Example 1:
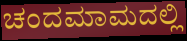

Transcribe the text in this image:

ಚಂದಮಾಮದಲ್ಲಿ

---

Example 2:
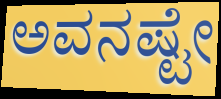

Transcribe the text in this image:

ಅವನಷ್ಟೇ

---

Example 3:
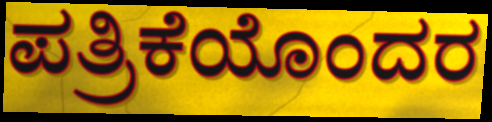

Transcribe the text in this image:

ಪತ್ರಿಕೆಯೊಂದರ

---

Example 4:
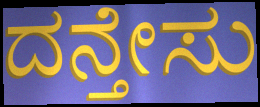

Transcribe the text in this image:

ದನ್ತೇಸು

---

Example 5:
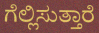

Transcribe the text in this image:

ಗೆಲ್ಲಿಸುತ್ತಾರೆ